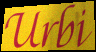
Urbi